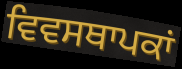
ਵਿਵਸਥਾਪਕਾਂ